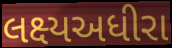
લક્ષ્યઅધીરા